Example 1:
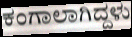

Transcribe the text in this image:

ಕಂಗಾಲಾಗಿದ್ದಳು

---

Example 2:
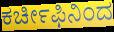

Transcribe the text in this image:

ಕರ್ಚೀಫಿನಿಂದ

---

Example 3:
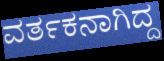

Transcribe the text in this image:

ವರ್ತಕನಾಗಿದ್ದ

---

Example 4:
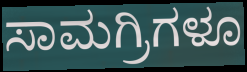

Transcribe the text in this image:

ಸಾಮಗ್ರಿಗಳೂ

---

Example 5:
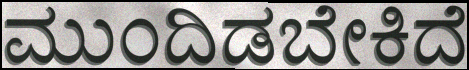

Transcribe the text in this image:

ಮುಂದಿಡಬೇಕಿದೆ